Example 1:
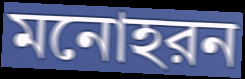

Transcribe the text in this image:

মনোহরন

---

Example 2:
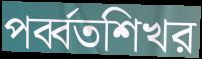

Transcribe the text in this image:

পর্ব্বতশিখর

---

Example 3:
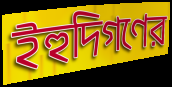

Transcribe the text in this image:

ইহুদিগণের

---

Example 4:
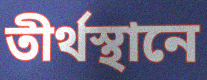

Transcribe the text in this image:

তীর্থস্থানে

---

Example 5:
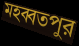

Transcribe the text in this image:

মহব্বতপুর